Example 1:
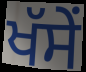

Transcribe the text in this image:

ਖੱਸੇਂ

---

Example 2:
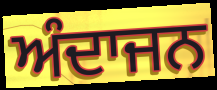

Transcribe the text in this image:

ਅੰਦਾਜਨ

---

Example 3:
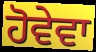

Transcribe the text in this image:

ਹੋਵੇਵਾ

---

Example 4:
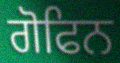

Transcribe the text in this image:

ਗੋਫਿਨ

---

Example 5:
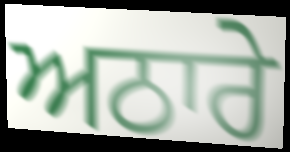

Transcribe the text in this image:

ਅਠਾਰੇ